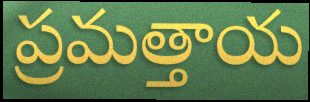
ప్రమత్తాయ